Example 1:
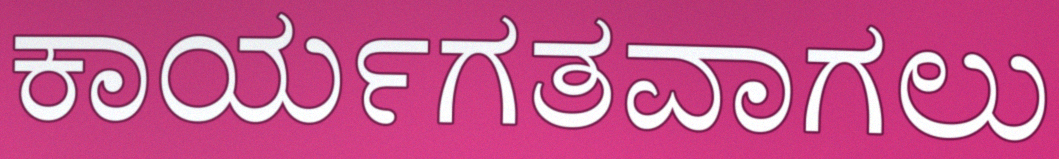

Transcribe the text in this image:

ಕಾರ್ಯಗತವಾಗಲು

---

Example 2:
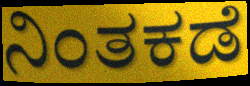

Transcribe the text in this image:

ನಿಂತಕಡೆ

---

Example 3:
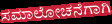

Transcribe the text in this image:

ಸಮಾಲೋಚನೆಗಾಗಿ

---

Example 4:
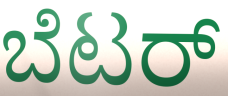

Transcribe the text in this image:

ಬೆಟರ್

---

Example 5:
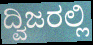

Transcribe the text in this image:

ದ್ವಿಜರಲ್ಲಿ